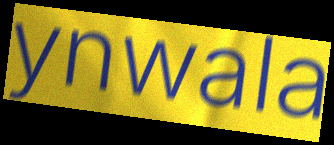
ynwala